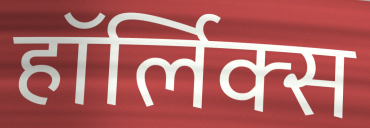
हॉर्लिक्‍स